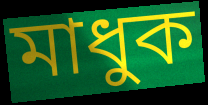
মাধুক